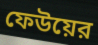
ফেউয়ের